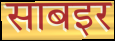
साबइर